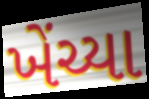
ખેંચ્યા